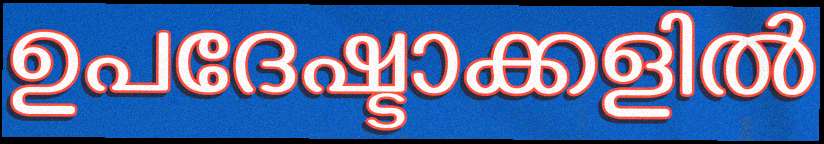
ഉപദേഷ്ടാക്കളിൽ